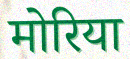
मोरिया